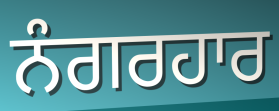
ਨੰਗਰਹਾਰ